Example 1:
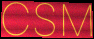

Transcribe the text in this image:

CSM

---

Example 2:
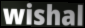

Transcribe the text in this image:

wishal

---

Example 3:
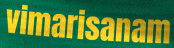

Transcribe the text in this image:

vimarisanam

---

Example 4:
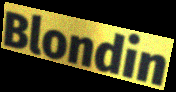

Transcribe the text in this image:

Blondin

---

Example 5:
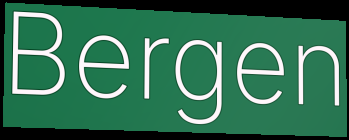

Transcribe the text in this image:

Bergen